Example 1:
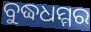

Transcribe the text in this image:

ବୁଦ୍ଧଧମ୍ମର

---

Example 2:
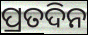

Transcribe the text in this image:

ପ୍ରତଦିନ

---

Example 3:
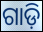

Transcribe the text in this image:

ଗାଡ଼ି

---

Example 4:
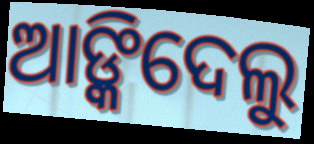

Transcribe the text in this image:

ଆଙ୍କିଦେଲୁ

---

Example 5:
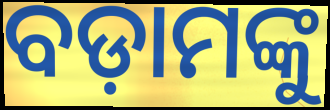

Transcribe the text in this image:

ବଡ଼ାମଙ୍କୁ